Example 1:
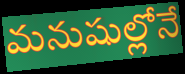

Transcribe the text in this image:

మనుషుల్లోనే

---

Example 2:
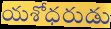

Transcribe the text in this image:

యశోధరుడు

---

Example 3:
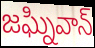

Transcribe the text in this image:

జఘ్నివాన్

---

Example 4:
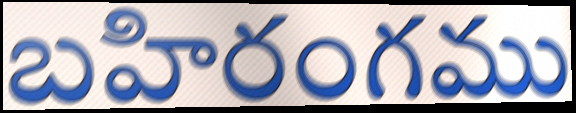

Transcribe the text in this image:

బహిరంగము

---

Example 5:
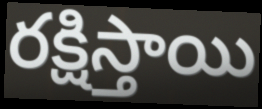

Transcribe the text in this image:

రక్షిస్తాయి